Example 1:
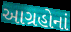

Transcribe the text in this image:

આગ્રહોનાં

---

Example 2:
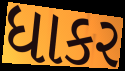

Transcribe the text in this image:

ધાકર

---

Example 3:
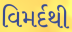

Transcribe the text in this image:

વિમર્દથી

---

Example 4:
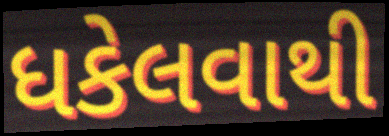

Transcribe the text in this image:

ધકેલવાથી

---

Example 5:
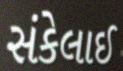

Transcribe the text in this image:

સંકેલાઈ